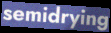
semidrying